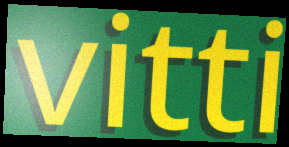
vitti